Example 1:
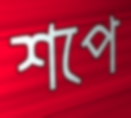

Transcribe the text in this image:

শপে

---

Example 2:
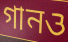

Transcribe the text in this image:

গানও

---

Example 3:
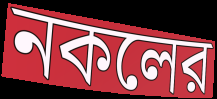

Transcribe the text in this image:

নকলের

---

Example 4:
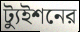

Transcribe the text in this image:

ট্যুইশনের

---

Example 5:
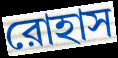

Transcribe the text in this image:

রোহাস